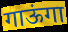
गाऊंगा